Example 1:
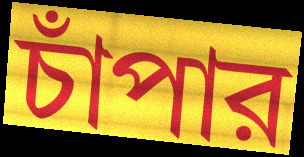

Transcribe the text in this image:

চাঁপার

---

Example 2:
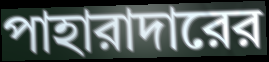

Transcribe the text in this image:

পাহারাদারের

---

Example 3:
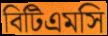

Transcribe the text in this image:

বিটিএমসি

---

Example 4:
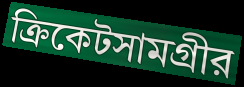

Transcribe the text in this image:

ক্রিকেটসামগ্রীর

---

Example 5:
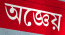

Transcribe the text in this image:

অজ্ঞেয়